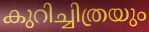
കുറിച്ചിത്രയും